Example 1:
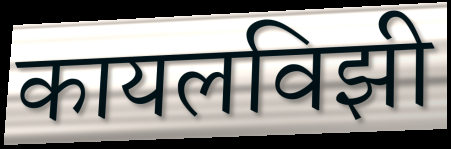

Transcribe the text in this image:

कायलविझी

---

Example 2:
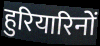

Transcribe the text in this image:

हुरियारिनों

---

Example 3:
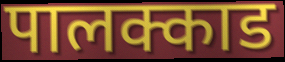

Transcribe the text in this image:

पालक्काड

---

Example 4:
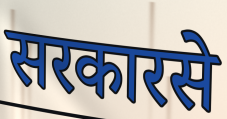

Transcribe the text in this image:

सरकारसे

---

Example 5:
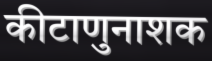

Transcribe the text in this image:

कीटाणुनाशक